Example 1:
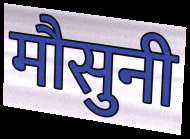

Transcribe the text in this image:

मौसुनी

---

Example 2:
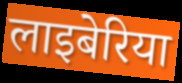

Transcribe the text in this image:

लाइबेरिया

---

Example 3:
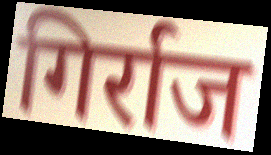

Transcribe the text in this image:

गिर्राज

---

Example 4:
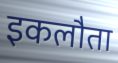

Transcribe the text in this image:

इकलौता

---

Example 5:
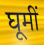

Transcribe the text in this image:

घूमीं